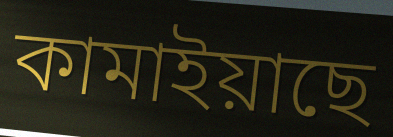
কামাইয়াছে